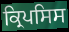
ਕ੍ਰਿਪਸਿਸ